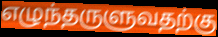
எழுந்தருளுவதற்கு